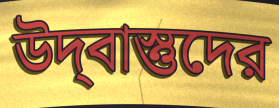
উদ্‌বাস্তুদের